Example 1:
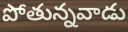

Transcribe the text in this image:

పోతున్నవాడు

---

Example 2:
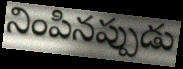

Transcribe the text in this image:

నింపినప్పుడు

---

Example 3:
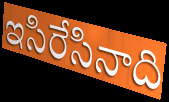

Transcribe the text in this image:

ఇసిరేసినాది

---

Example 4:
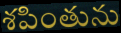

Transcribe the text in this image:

శపింతును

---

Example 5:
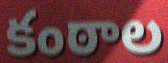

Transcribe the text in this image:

కంఠాల